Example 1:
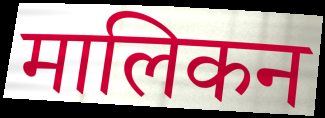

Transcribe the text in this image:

मालिकन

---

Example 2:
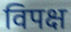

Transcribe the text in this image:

विपक्ष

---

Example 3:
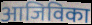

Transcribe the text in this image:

आजिविका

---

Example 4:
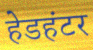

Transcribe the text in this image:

हेडहंटर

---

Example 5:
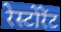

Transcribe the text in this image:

रेस्टोरेंट